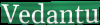
Vedantu